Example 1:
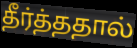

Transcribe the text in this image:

தீர்த்ததால்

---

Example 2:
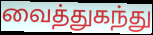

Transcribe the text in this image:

வைத்துகந்து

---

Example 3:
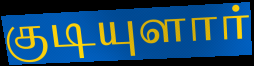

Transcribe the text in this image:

குடியுளார்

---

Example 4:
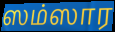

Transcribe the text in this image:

ஸம்ஸார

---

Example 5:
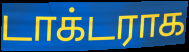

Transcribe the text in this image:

டாக்டராக